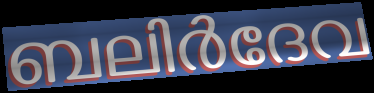
ബലിർദേവ